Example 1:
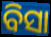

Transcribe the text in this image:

ବିସା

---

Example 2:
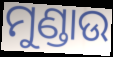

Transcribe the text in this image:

ମୁଣ୍ଡାଉ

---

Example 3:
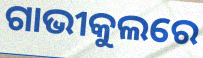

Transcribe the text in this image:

ଗାଭୀକୁଲରେ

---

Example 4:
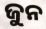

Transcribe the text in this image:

ଜୁନ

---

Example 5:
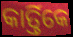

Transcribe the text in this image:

କାର୍ତ୍ତିକେ